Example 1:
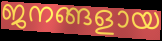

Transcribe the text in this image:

ജനങ്ങളായ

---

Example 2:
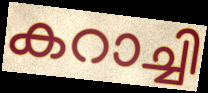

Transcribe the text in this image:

കറാച്ചി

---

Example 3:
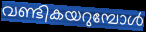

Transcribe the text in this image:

വണ്ടികയറുമ്പോൾ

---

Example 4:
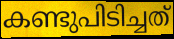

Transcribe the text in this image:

കണ്ടുപിടിച്ചത്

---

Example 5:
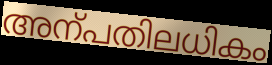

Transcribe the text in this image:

അന്പതിലധികം